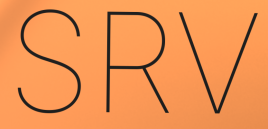
SRV